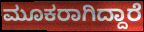
ಮೂಕರಾಗಿದ್ದಾರೆ